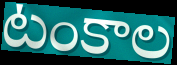
టంకాల